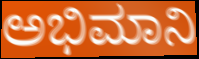
ಅಭಿಮಾನಿ